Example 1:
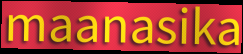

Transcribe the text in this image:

maanasika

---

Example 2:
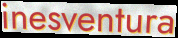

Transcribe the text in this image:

inesventura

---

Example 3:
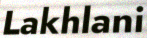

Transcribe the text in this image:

Lakhlani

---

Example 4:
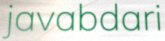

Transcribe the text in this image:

javabdari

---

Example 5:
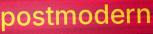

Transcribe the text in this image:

postmodern